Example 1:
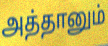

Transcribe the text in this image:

அத்தானும்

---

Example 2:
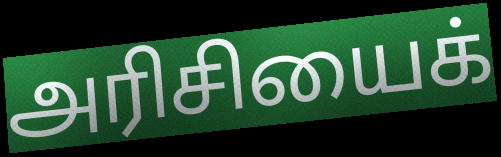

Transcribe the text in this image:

அரிசியைக்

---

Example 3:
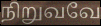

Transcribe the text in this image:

நிறுவவே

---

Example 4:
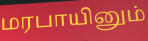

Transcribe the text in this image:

மரபாயினும்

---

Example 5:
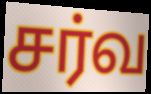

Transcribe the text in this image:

சர்வ